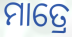
ମାତ୍ରେ